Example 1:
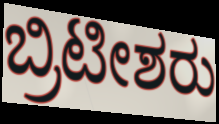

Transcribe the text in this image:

ಬ್ರಿಟೀಶರು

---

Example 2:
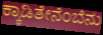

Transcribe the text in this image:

ಕ್ಕಾಡಿತೇನೆಂಬೆನು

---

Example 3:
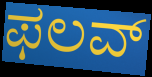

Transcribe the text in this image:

ಫಲವ್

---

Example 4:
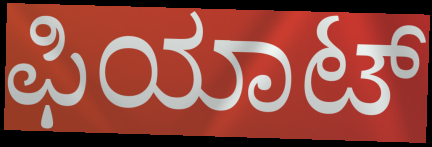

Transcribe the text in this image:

ಫಿಯಾಟ್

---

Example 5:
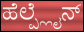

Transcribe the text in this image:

ಹೆಲ್ಪ್ಲೈನ್